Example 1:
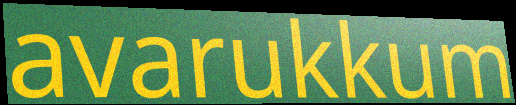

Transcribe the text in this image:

avarukkum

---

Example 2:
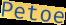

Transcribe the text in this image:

Petoe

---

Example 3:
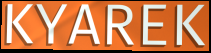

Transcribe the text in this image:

KYAREK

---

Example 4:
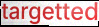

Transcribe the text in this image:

targetted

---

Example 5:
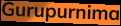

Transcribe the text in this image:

Gurupurnima